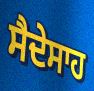
ਸੈਦੇਸਾਹ